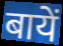
बायें